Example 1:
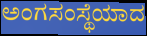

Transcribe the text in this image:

ಅಂಗಸಂಸ್ಥೆಯಾದ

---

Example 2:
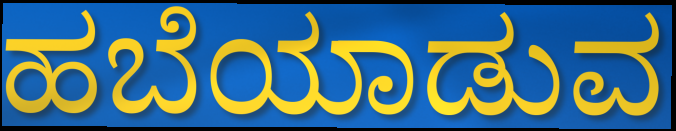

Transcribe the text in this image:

ಹಬೆಯಾಡುವ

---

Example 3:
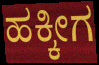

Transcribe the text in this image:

ಹಕ್ಕೀಗ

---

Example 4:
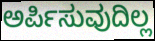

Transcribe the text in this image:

ಅರ್ಪಿಸುವುದಿಲ್ಲ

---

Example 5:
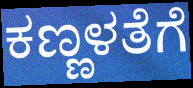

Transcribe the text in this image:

ಕಣ್ಣಳತೆಗೆ